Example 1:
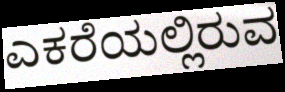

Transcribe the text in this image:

ಎಕರೆಯಲ್ಲಿರುವ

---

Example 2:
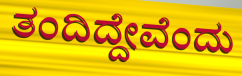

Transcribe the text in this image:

ತಂದಿದ್ದೇವೆಂದು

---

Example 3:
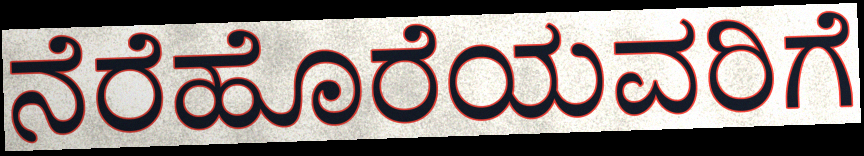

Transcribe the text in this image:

ನೆರೆಹೊರೆಯವರಿಗೆ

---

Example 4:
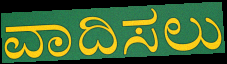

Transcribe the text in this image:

ವಾದಿಸಲು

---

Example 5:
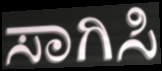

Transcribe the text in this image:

ಸಾಗಿಸಿ